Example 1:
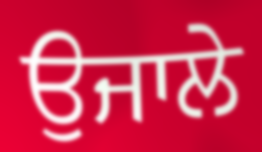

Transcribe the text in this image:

ਉਜਾਲੇ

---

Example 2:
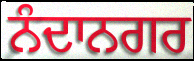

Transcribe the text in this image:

ਨੰਦਾਨਗਰ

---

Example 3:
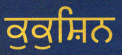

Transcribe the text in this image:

ਕੁਕੁਸ਼ਿਨ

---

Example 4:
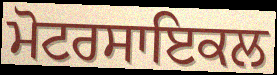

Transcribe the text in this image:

ਮੋਟਰਸਾਇਕਲ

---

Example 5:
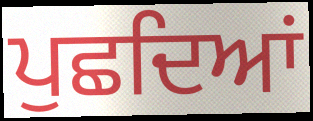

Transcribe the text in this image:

ਪੁਛਦਿਆਂ